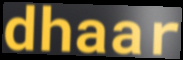
dhaar